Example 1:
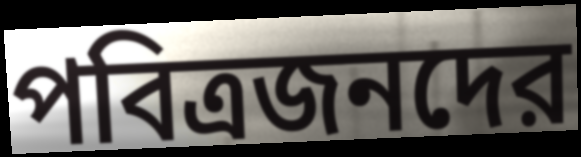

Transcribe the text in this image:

পবিত্রজনদের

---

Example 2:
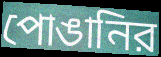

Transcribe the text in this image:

পোঙানির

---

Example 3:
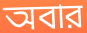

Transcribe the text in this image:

অবার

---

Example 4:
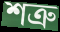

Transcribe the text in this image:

শত্রু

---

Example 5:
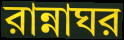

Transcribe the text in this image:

রান্নাঘর